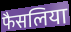
फैसलिया